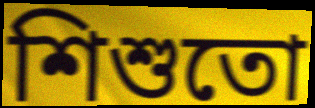
শিশুতো